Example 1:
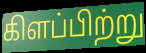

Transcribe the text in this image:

கிளப்பிற்று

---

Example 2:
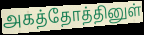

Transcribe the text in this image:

அகத்தோத்தினுள்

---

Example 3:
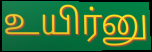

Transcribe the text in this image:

உயிர்னு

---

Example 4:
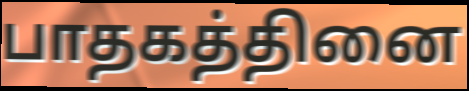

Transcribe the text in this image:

பாதகத்தினை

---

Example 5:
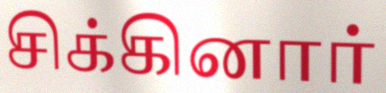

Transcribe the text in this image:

சிக்கினார்